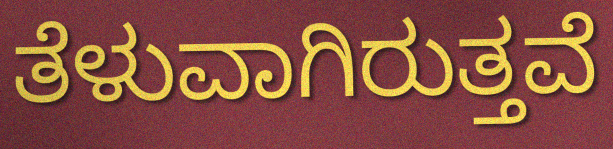
ತೆಳುವಾಗಿರುತ್ತವೆ